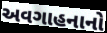
અવગાહનાનો